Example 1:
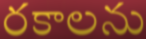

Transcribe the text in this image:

రకాలను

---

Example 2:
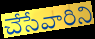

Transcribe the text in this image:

చేసేవారిని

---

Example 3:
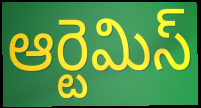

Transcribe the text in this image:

ఆర్టెమిస్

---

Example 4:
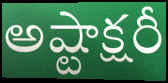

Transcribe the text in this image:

అష్టాక్షరీ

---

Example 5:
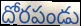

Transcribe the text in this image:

దోరపండు